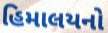
હિમાલયનો